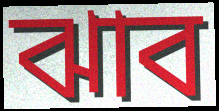
ঝাব